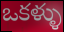
ఒకళ్ళు